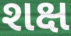
શક્ષ